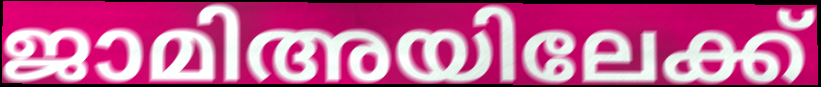
ജാമിഅയിലേക്ക്